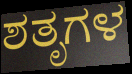
ಶತೃಗಳ